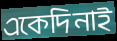
একেদিনাই